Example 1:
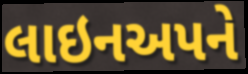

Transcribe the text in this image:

લાઇનઅપને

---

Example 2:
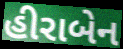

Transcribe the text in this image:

હીરાબેન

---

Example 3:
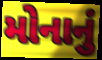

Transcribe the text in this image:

મોનાનું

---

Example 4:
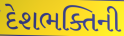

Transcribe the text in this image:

દેશભક્તિની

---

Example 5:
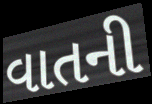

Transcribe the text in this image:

વાતની